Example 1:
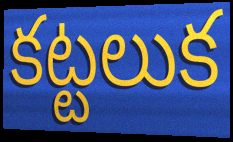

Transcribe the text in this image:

కట్టలుక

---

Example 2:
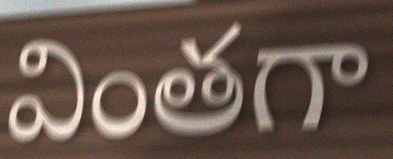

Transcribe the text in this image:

వింతగా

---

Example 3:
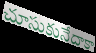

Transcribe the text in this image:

చూసుకునేదాకా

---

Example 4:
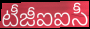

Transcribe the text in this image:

టీజీఐఐసీ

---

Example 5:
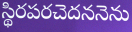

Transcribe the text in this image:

స్థిరపరచెదననెను